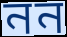
নন